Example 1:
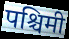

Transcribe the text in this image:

पश्चिमी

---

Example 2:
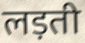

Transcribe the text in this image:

लड़ती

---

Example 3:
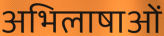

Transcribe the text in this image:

अभिलाषाओं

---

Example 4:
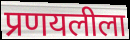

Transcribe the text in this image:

प्रणयलीला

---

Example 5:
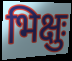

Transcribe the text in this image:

भिक्षुः